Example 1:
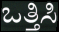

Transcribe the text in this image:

ಒತ್ತಿಸಿ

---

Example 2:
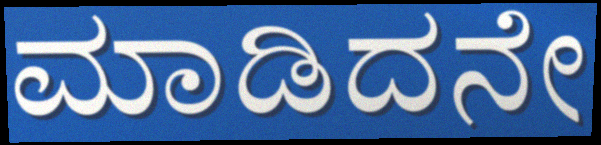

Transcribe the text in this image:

ಮಾಡಿದನೇ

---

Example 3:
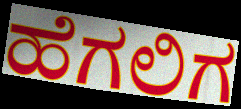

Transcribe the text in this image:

ಹೆಗಲಿಗ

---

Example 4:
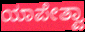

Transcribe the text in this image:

ಯಾಪೇತ್ವಾ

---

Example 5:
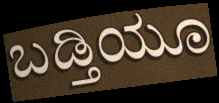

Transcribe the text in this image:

ಬಡ್ತಿಯೂ